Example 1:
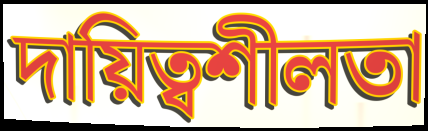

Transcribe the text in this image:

দায়িত্বশীলতা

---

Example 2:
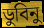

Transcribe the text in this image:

ডুবিনু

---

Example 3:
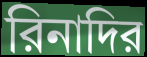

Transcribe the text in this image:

রিনাদির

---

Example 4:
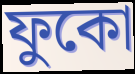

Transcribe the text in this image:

ফুকো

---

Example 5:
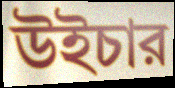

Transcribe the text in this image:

উইচার